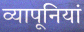
व्यापूनियां